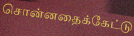
சொன்னதைக்கேட்டு